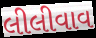
લીલીવાવ